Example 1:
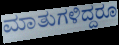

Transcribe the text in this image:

ಮಾತುಗಳಿದ್ದರೂ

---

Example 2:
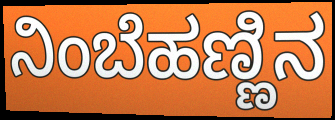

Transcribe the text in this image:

ನಿಂಬೆಹಣ್ಣಿನ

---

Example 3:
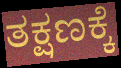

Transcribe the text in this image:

ತಕ್ಷಣಕ್ಕೆ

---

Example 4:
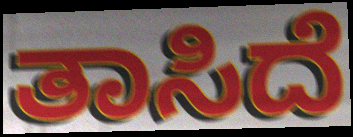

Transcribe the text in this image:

ತಾಸಿದೆ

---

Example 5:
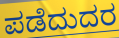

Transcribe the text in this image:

ಪಡೆದುದರ